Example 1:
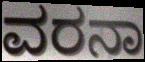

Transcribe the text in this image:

ವರನಾ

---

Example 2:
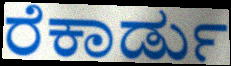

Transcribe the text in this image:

ರೆಕಾರ್ಡು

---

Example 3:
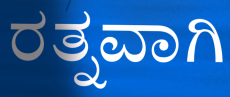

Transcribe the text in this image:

ರತ್ನವಾಗಿ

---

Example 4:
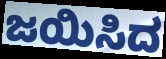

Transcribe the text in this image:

ಜಯಿಸಿದ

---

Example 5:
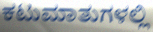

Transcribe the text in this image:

ಕಟುಮಾತುಗಳಲ್ಲಿ